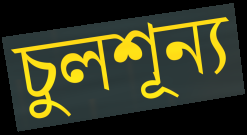
চুলশূন্য